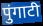
पुंगाटी